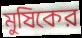
মুষিকের